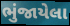
ભુંજાયેલા